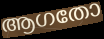
ആഗതോ